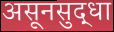
असूनसुद्धा